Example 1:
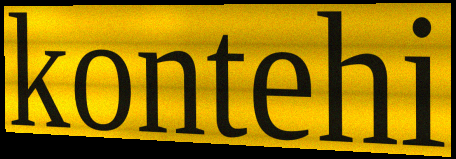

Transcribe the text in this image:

kontehi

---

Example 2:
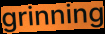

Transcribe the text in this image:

grinning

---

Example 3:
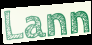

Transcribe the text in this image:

Lann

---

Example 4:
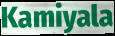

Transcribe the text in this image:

Kamiyala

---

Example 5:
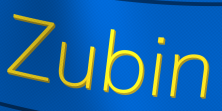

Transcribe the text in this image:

Zubin